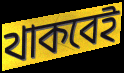
থাকবেই